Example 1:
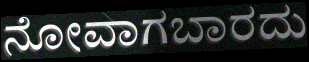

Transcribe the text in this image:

ನೋವಾಗಬಾರದು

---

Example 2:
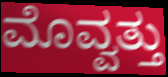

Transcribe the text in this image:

ಮೊವ್ವತ್ತು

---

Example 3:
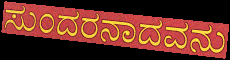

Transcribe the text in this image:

ಸುಂದರನಾದವನು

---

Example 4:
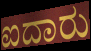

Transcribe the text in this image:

ಐದಾರು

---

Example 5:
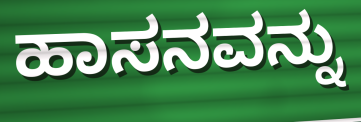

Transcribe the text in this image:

ಹಾಸನವನ್ನು